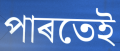
পাৰতেই